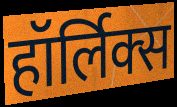
हॉर्लिक्‍स